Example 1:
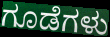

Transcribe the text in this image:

ಗೂಡೆಗಳು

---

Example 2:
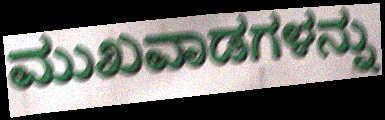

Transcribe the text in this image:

ಮುಖವಾಡಗಳನ್ನು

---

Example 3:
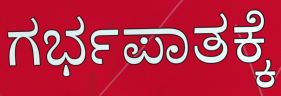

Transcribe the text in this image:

ಗರ್ಭಪಾತಕ್ಕೆ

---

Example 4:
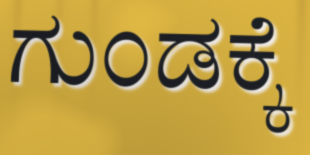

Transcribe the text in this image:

ಗುಂಡಕ್ಕೆ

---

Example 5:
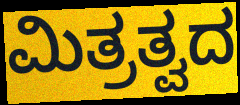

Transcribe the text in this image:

ಮಿತ್ರತ್ವದ